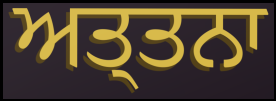
ਅਤ੍ਤਨਾ